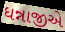
ધન્નાજીએ